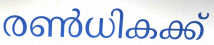
രൺധികക്ക്